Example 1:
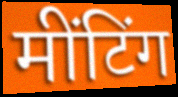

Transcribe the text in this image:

मींटिंग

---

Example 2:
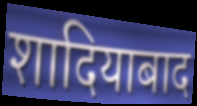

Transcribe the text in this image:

शादियाबाद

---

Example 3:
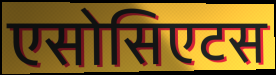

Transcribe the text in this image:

एसोसिएटस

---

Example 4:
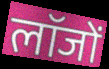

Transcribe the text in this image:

लॉजों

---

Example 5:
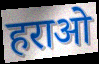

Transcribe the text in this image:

हराओ